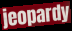
jeopardy